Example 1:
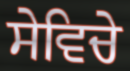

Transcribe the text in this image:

ਸੇਵਿਚੇ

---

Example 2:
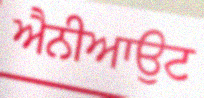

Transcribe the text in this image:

ਐਨੀਆਉਟ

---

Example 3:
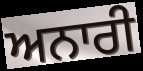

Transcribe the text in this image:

ਅਨਾਰੀ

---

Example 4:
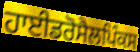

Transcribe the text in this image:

ਹਾਈਡਰੋਸੈਲਪਿੰਕਸ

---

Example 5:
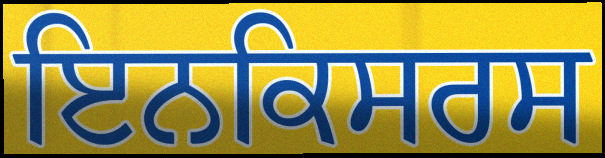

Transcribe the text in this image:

ਇਨਕਿਸਰਸ